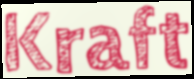
Kraft